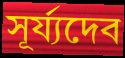
সূর্য্যদেব